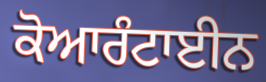
ਕੋਆਰੰਟਾਈਨ